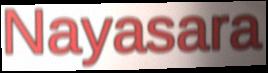
Nayasara